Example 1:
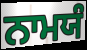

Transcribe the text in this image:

ਨਾਮਯੰ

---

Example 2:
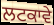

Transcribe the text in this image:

ਲਟਕਾਵੇ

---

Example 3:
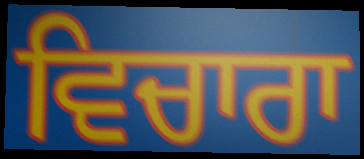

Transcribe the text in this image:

ਵਿਚਾਰਾ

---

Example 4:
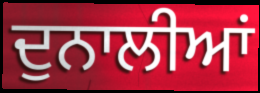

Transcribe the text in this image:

ਦੁਨਾਲੀਆਂ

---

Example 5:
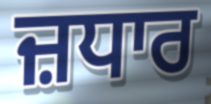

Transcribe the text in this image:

ਜ਼ਧਾਰ